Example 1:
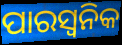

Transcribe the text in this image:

ପାରସ୍ୱନିକ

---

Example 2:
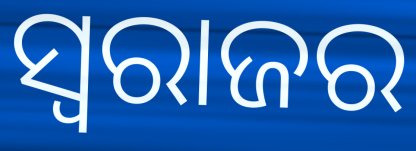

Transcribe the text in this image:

ସ୍ବରାଜର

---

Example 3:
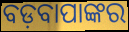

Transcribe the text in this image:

ବଡ଼ବାପାଙ୍କର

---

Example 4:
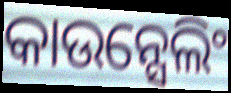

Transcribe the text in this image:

କାଉନ୍ସେଲିଂ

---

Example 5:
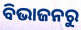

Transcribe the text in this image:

ବିଭାଜନରୁ